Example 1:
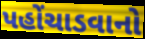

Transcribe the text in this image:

પહોંચાડવાનો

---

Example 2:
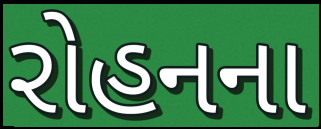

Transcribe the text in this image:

રોહનના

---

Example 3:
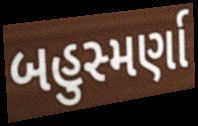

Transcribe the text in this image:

બહુસ્મર્ણા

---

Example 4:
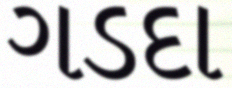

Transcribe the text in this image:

ગડદા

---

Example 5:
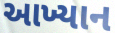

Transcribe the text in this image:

આખ્યાન